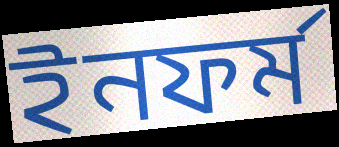
ইনফর্ম